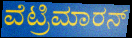
ವೆಟ್ರಿಮಾರನ್